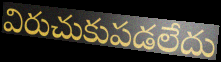
విరుచుకుపడలేదు